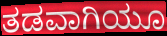
ತಡವಾಗಿಯೂ